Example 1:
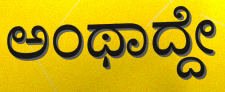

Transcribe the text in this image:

ಅಂಥಾದ್ದೇ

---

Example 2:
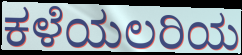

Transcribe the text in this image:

ಕಳೆಯಲರಿಯ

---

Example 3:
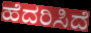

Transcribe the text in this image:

ಹೆದರಿಸಿದೆ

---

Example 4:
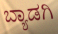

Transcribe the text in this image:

ಬ್ಯಾಡಗಿ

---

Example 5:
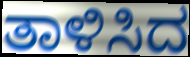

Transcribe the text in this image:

ತಾಳಿಸಿದ